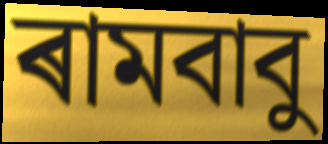
ৰামবাবু